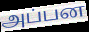
அப்பன